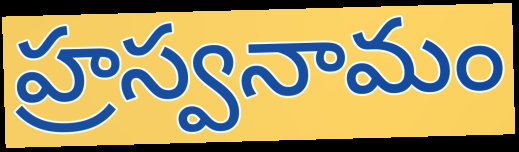
హ్రస్వనామం